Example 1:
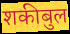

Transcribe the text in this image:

शकीबुल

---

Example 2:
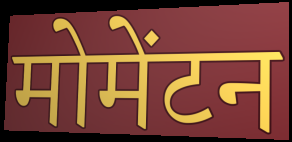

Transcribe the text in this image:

मोमेंटन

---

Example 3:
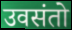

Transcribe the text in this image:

उवसंतो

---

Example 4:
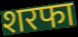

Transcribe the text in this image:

शरफा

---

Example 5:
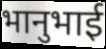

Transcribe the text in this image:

भानुभाई